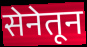
सेनेतून